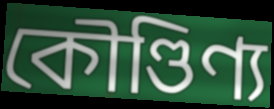
কৌণ্ডিণ্য